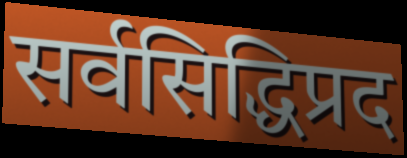
सर्वसिद्धिप्रद